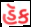
હૅક